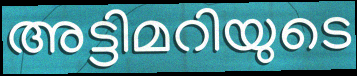
അട്ടിമറിയുടെ